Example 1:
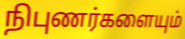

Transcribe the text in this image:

நிபுணர்களையும்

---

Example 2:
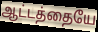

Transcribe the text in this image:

ஆட்டத்தையே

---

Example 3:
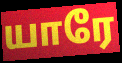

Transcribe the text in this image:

யாரே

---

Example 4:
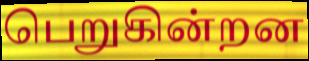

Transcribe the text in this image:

பெறுகின்றன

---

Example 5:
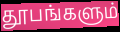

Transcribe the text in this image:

தூபங்களும்